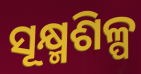
ସୂକ୍ଷ୍ମଶିଳ୍ପ